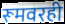
रूमवरही